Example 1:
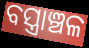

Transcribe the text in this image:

ବସ୍ତ୍ରାଞ୍ଚଳ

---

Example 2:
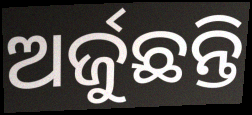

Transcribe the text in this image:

ଅର୍ଜୁଛନ୍ତି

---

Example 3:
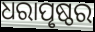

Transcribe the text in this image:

ଧରାପୃଷ୍ଠର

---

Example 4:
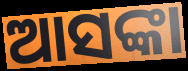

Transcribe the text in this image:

ଆସଙ୍କା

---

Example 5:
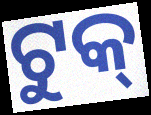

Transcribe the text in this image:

ଟୁକ୍